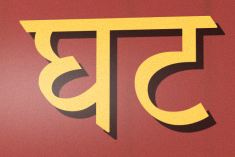
घट